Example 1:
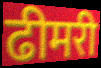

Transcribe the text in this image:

ढीमरी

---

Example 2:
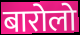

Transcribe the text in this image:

बारोलो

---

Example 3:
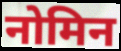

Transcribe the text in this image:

नोमिन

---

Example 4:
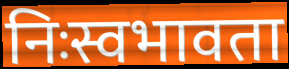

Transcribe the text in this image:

निःस्वभावता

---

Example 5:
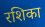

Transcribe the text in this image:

रशिका